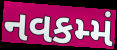
નવકમ્મં